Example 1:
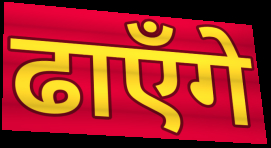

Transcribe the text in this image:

ढाएँगे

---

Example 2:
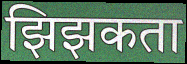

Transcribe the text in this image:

झिझकता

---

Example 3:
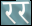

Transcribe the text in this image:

रर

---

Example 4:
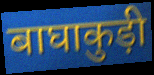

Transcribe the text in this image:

बाघाकुड़ी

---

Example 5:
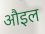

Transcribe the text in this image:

औइल